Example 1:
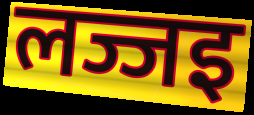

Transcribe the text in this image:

लज्जइ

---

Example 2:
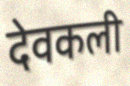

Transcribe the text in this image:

देवकली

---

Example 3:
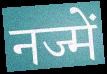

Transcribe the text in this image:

नज्में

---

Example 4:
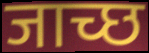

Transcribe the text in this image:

जाच्छ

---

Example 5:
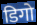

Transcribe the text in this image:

डिगो